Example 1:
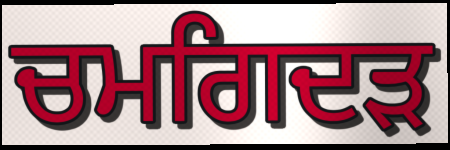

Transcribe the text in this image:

ਚਮਗਿਦੜ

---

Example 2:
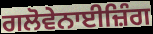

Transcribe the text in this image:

ਗਲੋਵੇਨਾਈਜ਼ਿੰਗ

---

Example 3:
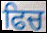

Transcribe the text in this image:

ਫਿਚ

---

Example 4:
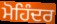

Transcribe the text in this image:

ਮੋਹਿੰਦਰ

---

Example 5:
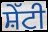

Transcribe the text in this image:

ਸ਼ੇੱਟੀ